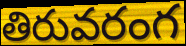
తిరువరంగ